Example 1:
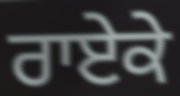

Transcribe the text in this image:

ਰਾਏਕੇ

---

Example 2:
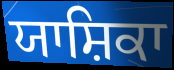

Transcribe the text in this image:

ਯਾਸ਼ਿਕਾ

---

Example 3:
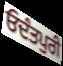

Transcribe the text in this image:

ਓਦੰਤਪੁਰੀ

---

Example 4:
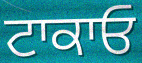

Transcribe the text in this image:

ਟਾਕਾਓ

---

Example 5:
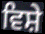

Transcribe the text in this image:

ਵਿਸ਼ੇ